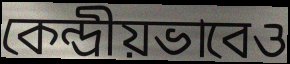
কেন্দ্রীয়ভাবেও